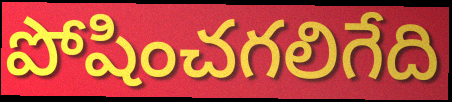
పోషించగలిగేది